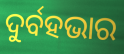
ଦୁର୍ବହଭାର